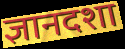
ज्ञानदशा